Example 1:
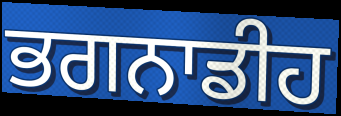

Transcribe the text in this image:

ਭਗਨਾਡੀਹ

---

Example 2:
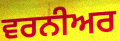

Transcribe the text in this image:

ਵਰਨੀਅਰ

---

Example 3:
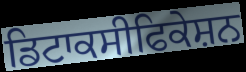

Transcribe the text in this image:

ਡਿਟਾਕਸੀਫਿਕੇਸ਼ਨ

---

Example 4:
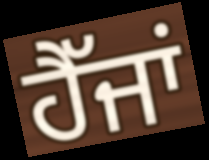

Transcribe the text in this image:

ਹੈੱਜਾਂ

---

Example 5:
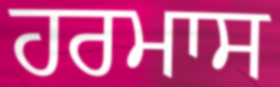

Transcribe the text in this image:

ਹਰਮਾਸ